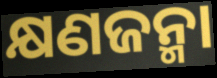
କ୍ଷଣଜନ୍ମା